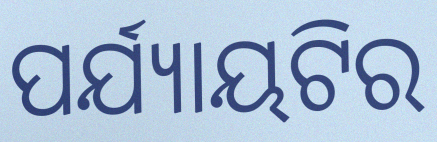
ପର୍ଯ୍ୟାୟଟିର